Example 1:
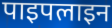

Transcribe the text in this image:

पाइपलाइन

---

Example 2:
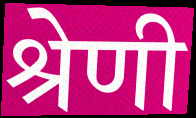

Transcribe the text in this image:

श्रेणी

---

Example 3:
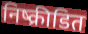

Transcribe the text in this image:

निष्क्रीडित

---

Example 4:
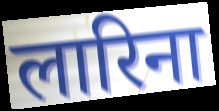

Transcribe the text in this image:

लारिना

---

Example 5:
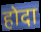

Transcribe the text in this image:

होदा